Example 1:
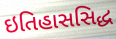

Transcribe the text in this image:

ઇતિહાસસિદ્ધ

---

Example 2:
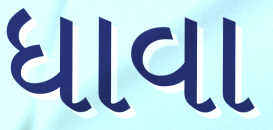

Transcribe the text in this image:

ધાવા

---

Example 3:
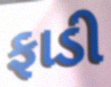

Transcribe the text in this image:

ફાડી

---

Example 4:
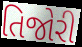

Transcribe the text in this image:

તિજોરી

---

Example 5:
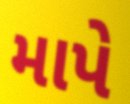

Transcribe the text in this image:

માપે